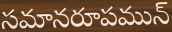
సమానరూపమున్